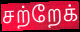
சற்றேக்